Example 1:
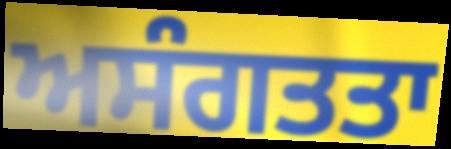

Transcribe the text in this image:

ਅਸੰਗਤਤਾ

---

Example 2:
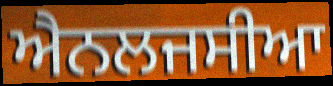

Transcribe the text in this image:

ਐਨਲਜਸੀਆ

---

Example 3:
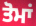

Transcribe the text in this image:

ਤੋਮਾਂ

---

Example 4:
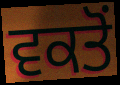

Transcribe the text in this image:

ਵਕਤੋਂ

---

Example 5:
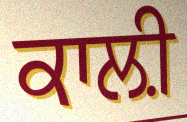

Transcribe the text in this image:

ਕਾਲ਼ੀ